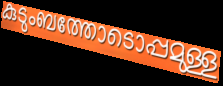
കുടുംബത്തോടൊപ്പമുള്ള